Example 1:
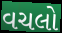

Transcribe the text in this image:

વચલો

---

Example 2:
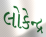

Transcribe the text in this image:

લોકેન્દ્ર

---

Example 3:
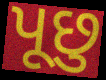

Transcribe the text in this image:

પૂછુ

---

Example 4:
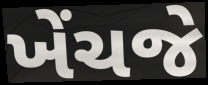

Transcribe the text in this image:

ખેંચજે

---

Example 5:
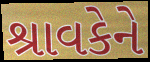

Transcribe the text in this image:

શ્રાવકેને